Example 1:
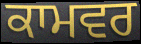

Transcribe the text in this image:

ਕਾਮਵਰ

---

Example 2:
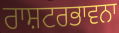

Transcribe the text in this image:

ਰਾਸ਼ਟਰਭਾਵਨਾ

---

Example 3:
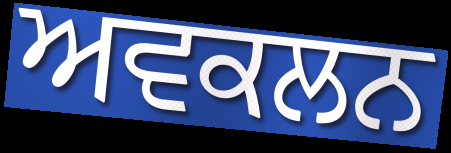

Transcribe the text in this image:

ਅਵਕਲਨ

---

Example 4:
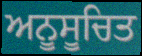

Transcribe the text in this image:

ਅਨੂਸੂਚਿਤ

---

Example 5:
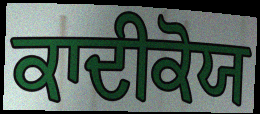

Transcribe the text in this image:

ਕਾਦੀਕੋਯ